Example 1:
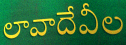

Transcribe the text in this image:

లావాదేవీల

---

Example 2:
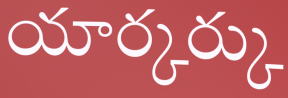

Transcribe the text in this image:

యార్కర్కు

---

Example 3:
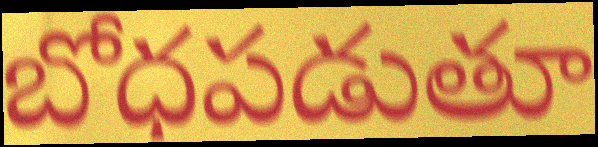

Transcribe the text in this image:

బోధపడుతూ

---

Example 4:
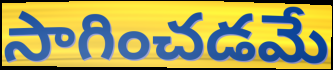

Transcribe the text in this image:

సాగించడమే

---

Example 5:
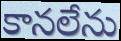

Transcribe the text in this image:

కానలేను